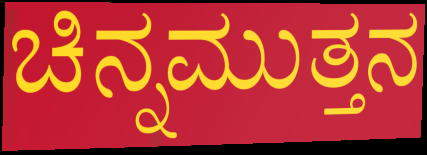
ಚಿನ್ನಮುತ್ತನ